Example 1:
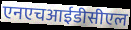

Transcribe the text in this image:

एनएचआईडीसीएल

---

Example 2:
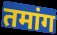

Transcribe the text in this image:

तमांग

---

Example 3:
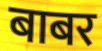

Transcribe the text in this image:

बाबर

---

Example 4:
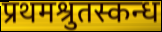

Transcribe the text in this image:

प्रथमश्रुतस्कन्ध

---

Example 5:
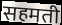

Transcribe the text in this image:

सहमती